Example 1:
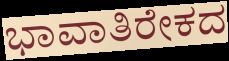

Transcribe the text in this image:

ಭಾವಾತಿರೇಕದ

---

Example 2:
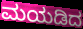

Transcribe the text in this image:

ಮಯಡಿದ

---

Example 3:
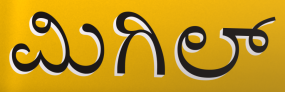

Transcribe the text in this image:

ಮಿಗಿಲ್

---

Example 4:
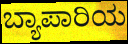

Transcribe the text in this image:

ಬ್ಯಾಪಾರಿಯ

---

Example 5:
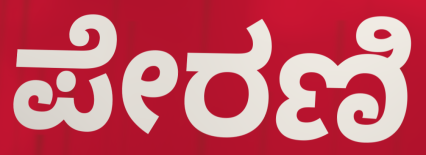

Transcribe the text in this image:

ಪೇರಣಿ